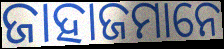
ଜାହାଜମାନେ